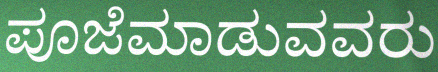
ಪೂಜೆಮಾಡುವವರು